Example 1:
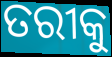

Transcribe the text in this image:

ତରୀକୁ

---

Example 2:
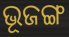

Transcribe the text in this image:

ଭୂଜଙ୍ଗ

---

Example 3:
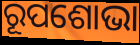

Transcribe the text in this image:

ରୂପଶୋଭା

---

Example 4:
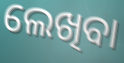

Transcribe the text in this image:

ଲେଖିବା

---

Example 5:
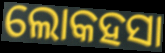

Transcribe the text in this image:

ଲୋକହସା